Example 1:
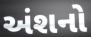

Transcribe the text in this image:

અંશનો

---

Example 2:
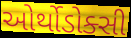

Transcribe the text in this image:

ઓર્થોડોક્સી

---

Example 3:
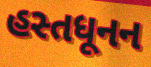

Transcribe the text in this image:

હસ્તધૂનન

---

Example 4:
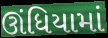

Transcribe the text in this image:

ઊંધિયામાં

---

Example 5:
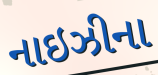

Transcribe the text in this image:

નાઇઝીના